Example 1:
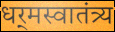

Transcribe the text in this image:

धर्मस्वातंत्र्य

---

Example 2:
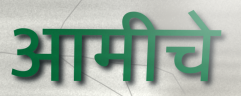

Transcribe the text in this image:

आमीचे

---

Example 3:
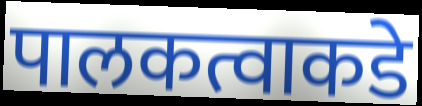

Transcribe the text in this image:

पालकत्वाकडे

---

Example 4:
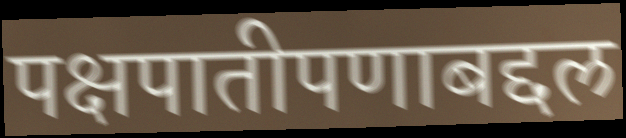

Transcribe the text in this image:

पक्षपातीपणाबद्दल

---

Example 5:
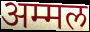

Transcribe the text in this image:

अम्मल